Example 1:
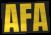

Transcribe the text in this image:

AFA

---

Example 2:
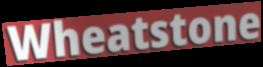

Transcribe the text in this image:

Wheatstone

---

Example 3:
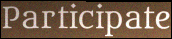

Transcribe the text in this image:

Participate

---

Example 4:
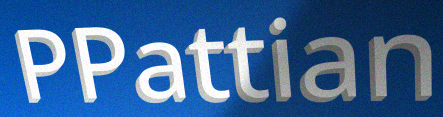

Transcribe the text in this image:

PPattian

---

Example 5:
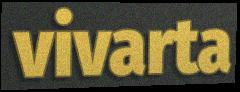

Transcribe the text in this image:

vivarta